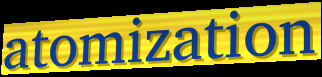
atomization